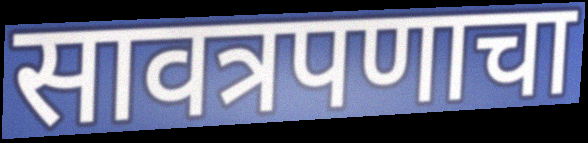
सावत्रपणाचा